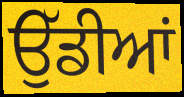
ਉੱਡੀਆਂ